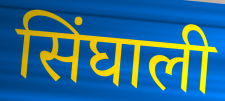
सिंघाली